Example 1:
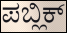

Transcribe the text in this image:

ಪಬ್ಲಿಕ್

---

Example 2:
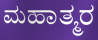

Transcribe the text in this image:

ಮಹಾತ್ಮರ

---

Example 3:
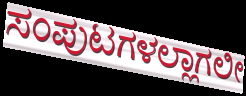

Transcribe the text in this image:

ಸಂಪುಟಗಳಲ್ಲಾಗಲೀ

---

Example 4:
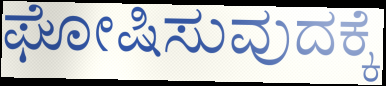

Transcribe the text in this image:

ಘೋಷಿಸುವುದಕ್ಕೆ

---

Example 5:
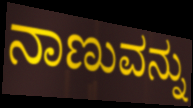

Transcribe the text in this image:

ನಾಣುವನ್ನು